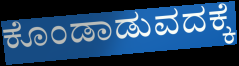
ಕೊಂಡಾಡುವದಕ್ಕೆ